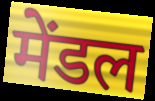
मेंडल